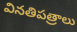
వినతిపత్రాలు